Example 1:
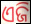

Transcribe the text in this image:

ଏଜି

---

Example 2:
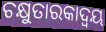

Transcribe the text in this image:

ଚକ୍ଷୁତାରକାଦ୍ଵୟ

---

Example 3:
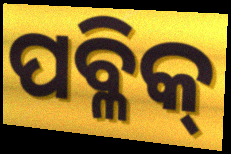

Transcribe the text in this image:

ପବ୍ଳିକ୍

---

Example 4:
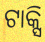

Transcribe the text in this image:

ଟାକ୍ସି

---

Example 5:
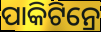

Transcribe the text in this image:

ପାକିଟିନ୍ରେ